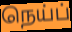
நெய்ப்